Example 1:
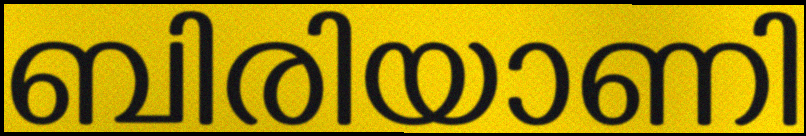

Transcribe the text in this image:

ബിരിയാണി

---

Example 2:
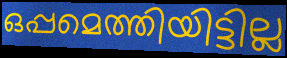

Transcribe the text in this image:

ഒപ്പമെത്തിയിട്ടില്ല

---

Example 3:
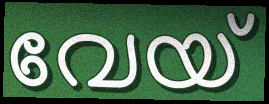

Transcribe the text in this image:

വേയ്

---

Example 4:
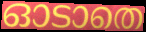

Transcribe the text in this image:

ഓടാതെ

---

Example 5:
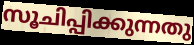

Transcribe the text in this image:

സൂചിപ്പിക്കുന്നതു